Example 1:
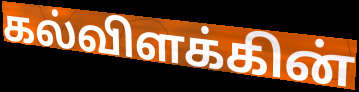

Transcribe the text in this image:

கல்விளக்கின்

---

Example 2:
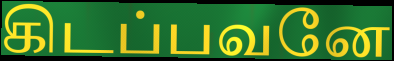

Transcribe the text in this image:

கிடப்பவனே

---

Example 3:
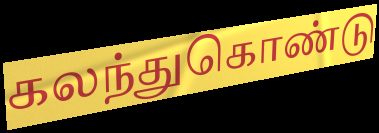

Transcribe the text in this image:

கலந்துகொண்டு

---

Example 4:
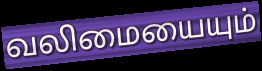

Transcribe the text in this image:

வலிமையையும்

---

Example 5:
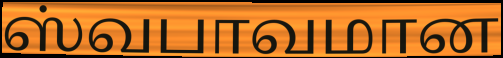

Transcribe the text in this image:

ஸ்வபாவமான